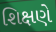
શિક્ષણે